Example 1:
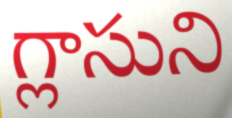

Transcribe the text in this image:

గ్లాసుని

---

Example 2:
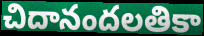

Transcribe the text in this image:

చిదానందలతికా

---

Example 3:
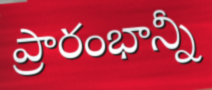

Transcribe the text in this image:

ప్రారంభాన్నీ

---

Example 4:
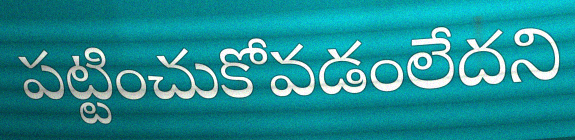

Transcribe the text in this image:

పట్టించుకోవడంలేదని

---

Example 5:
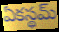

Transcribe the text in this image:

ఏకస్థమ్